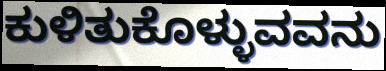
ಕುಳಿತುಕೊಳ್ಳುವವನು